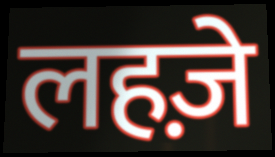
लहज़े